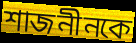
শাজনীনকে